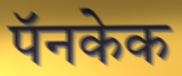
पॅनकेक